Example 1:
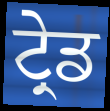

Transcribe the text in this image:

ਟ੍ਰੇਡ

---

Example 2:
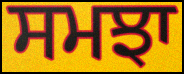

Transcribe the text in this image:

ਸਮਝਾ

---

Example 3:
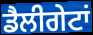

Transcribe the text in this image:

ਡੈਲੀਗੇਟਾਂ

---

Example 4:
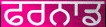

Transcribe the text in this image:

ਫਰਨਾਡ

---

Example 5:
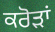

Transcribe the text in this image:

ਕਰੋਡ਼ਾਂ